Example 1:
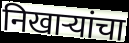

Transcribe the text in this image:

निखार्‍यांचा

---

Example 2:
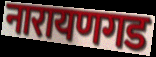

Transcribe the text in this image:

नारायणगड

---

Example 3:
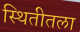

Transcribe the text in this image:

स्थितीतला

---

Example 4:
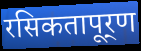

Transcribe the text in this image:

रसिकतापूर्ण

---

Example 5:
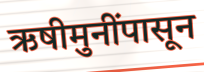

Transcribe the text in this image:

ऋषीमुनींपासून